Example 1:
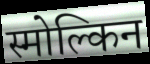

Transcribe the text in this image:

स्मोल्किन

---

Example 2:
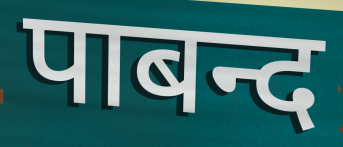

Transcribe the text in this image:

पाबन्द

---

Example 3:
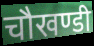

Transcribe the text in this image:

चौखण्डी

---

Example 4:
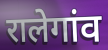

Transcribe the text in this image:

रालेगांव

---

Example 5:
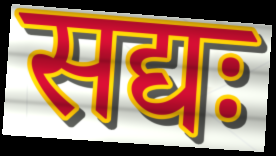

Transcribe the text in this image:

सद्यः